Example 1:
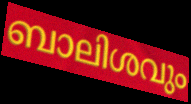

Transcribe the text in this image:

ബാലിശവും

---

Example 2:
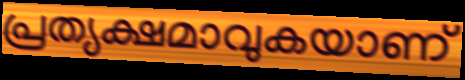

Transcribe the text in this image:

പ്രത്യക്ഷമാവുകയാണ്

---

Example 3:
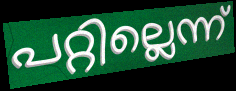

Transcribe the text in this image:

പറ്റില്ലെന്ന്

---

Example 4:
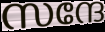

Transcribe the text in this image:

സന്ദേ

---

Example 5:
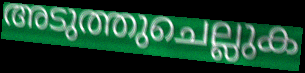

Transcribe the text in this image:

അടുത്തുചെല്ലുക